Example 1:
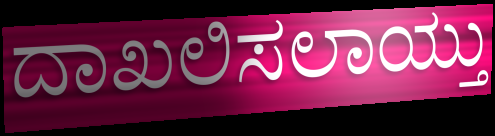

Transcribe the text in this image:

ದಾಖಲಿಸಲಾಯ್ತು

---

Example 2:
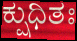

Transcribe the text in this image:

ಕ್ಷುಧಿತಃ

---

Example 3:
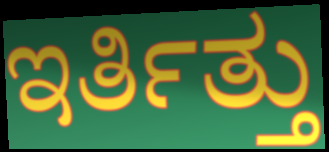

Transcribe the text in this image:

ಇರ್ತಿತ್ತು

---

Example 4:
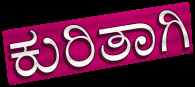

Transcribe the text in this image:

ಕುರಿತಾಗಿ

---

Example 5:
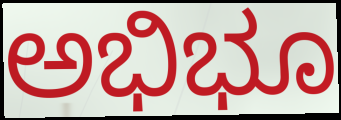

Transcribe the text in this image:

ಅಭಿಭೂ